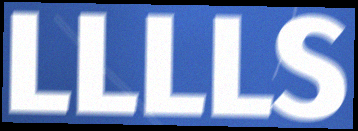
LLLLS